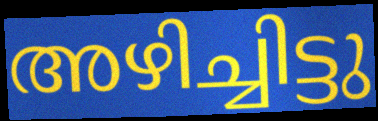
അഴിച്ചിട്ടു